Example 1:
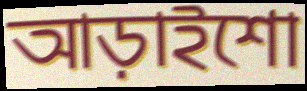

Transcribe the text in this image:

আড়াইশো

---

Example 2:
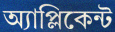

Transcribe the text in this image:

অ্যাপ্লিকেন্ট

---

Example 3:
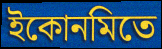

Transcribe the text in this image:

ইকোনমিতে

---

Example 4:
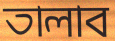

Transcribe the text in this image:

তালাব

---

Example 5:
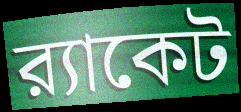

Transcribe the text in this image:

র‍্যাকেট